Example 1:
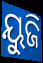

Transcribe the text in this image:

ୟୁଜି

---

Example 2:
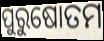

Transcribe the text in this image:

ପୁରୁଷୋତମ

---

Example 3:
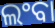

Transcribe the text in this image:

ଲଂବା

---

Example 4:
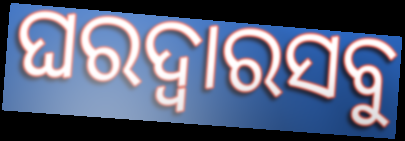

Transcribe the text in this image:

ଘରଦ୍ୱାରସବୁ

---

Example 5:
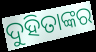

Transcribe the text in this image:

ଦୁହିତାଙ୍କର